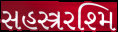
સહસ્ત્રરશ્મિ